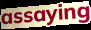
assaying